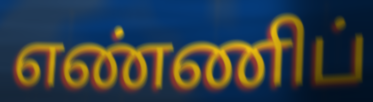
எண்ணிப்